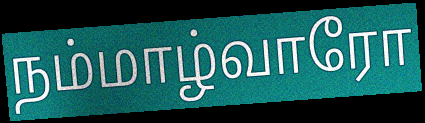
நம்மாழ்வாரோ